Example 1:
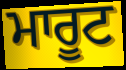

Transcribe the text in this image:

ਮਾਰੂਟ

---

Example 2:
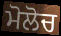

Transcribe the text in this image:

ਮੋਲੋਚ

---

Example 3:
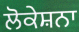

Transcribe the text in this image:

ਲੋਕੇਸ਼ਨਾ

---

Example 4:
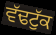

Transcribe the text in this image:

ਵੱਢਟੁੱਕ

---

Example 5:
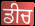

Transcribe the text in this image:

ਡੀਚ